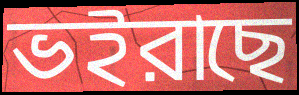
ভইরাছে